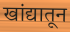
खांद्यातून